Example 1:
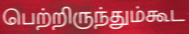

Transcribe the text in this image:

பெற்றிருந்தும்கூட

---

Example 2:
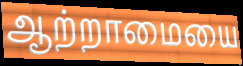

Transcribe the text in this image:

ஆற்றாமையை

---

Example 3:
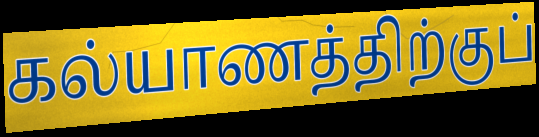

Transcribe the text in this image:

கல்யாணத்திற்குப்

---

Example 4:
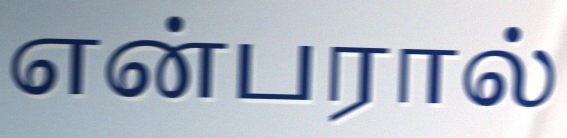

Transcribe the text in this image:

என்பரால்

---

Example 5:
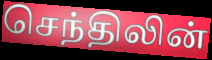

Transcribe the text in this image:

செந்திலின்